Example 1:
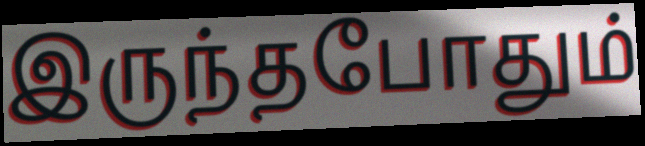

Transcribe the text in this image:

இருந்தபோதும்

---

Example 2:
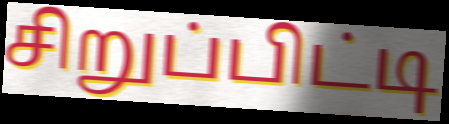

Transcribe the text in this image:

சிறுப்பிட்டி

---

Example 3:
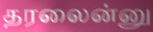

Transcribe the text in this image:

தரலைன்னு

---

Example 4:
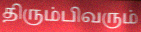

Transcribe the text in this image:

திரும்பிவரும்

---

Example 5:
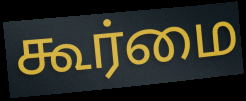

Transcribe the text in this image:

கூர்மை